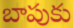
బాపుకు